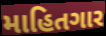
માહિતગાર